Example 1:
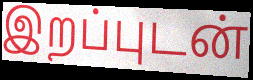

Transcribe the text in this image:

இறப்புடன்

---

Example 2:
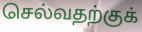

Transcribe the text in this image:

செல்வதற்குக்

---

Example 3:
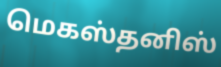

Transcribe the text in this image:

மெகஸ்தனிஸ்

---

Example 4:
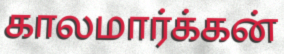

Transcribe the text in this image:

காலமார்க்கன்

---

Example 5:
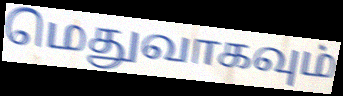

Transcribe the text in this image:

மெதுவாகவும்